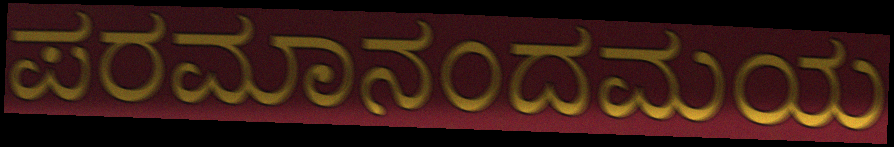
ಪರಮಾನಂದಮಯ